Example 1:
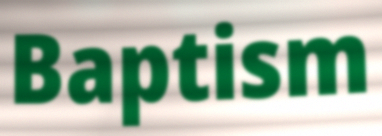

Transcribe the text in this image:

Baptism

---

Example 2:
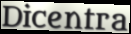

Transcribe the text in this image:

Dicentra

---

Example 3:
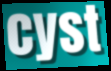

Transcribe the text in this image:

cyst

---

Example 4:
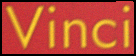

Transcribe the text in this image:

Vinci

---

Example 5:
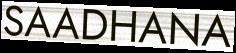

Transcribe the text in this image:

SAADHANA